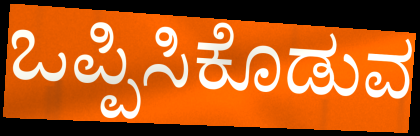
ಒಪ್ಪಿಸಿಕೊಡುವ